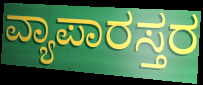
ವ್ಯಾಪಾರಸ್ತರ